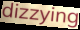
dizzying